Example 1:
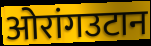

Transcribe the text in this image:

ओरांगउटान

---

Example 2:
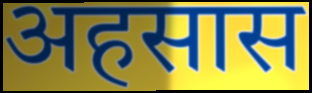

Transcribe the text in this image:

अहसास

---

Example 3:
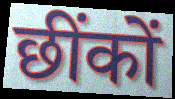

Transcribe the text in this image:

छींकों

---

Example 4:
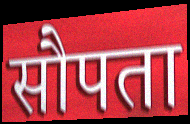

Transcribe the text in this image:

सौपता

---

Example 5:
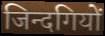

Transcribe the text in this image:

जिन्दगियों